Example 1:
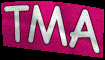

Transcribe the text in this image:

TMA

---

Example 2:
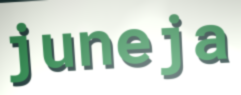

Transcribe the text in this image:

juneja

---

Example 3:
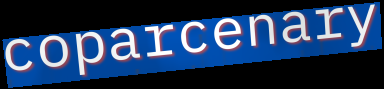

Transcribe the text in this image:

coparcenary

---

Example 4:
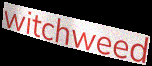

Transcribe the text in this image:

witchweed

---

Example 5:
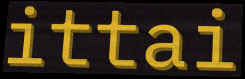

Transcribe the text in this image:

ittai